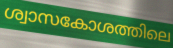
ശ്വാസകോശത്തിലെ